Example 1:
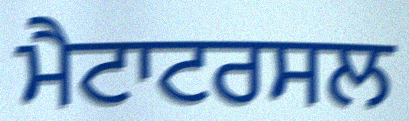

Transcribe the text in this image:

ਮੈਟਾਟਰਸਲ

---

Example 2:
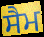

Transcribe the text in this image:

ਸੈਮ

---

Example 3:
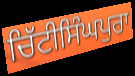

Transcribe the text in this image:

ਚਿੱਟੀਸਿੰਘਪੁਰਾ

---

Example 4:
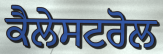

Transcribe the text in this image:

ਕੈਲੇਸਟਰੋਲ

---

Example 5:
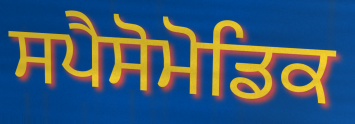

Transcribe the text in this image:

ਸਪੈਸੋਮੋਡਿਕ